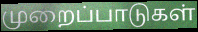
முறைப்பாடுகள்